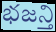
భజన్తి